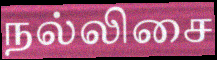
நல்லிசை